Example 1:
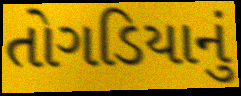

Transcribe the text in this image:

તોગડિયાનું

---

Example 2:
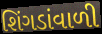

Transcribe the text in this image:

શિંગડાંવાળી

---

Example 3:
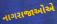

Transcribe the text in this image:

નાગરાજાઓએ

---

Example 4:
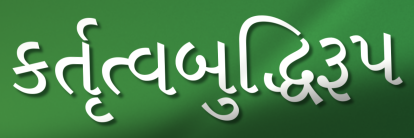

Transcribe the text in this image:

કર્તૃત્વબુદ્ધિરૂપ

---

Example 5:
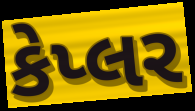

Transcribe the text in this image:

કેપ્લર